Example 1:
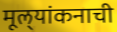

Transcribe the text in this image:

मूल्यांकनाची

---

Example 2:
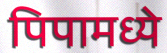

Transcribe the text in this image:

पिपामध्ये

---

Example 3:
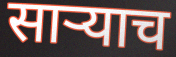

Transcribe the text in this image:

साऱ्याच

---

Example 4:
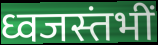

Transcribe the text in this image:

ध्वजस्तंभीं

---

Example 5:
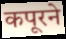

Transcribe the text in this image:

कपूरने